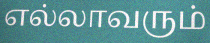
எல்லாவரும்